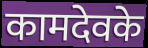
कामदेवके